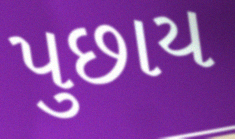
પુછાય